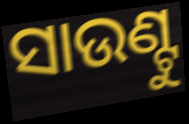
ସାଉଣ୍ଟୁ